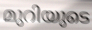
മുറിയുടെ